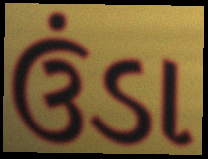
ઉંડા